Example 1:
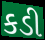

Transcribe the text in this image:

કડી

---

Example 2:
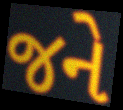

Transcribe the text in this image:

જને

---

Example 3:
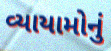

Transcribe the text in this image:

વ્યાયામોનું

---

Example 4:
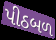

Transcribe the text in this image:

પીઠબળ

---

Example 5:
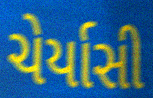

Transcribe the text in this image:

ચેર્યાસી